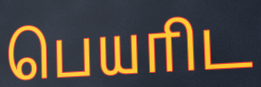
பெயரிட